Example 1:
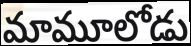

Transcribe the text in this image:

మామూలోడు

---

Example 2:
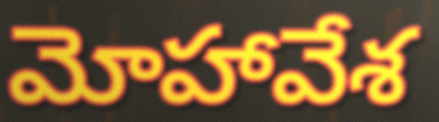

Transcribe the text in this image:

మోహావేశ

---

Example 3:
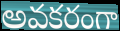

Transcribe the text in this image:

అవకరంగా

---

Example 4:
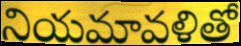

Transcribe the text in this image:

నియమావళితో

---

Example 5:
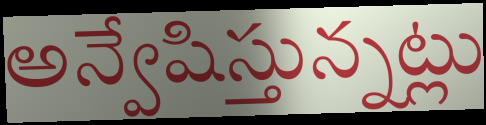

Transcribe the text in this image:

అన్వేషిస్తున్నట్లు